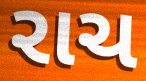
રાચ